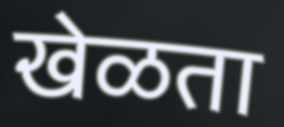
खेळता